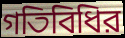
গতিবিধির